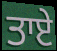
ਤਾਏ